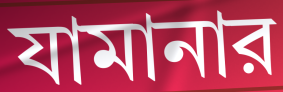
যামানার